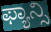
ಫ್ಯಾನ್ಸಿ